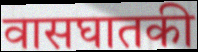
वासघातकी